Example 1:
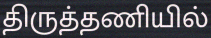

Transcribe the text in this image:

திருத்தணியில்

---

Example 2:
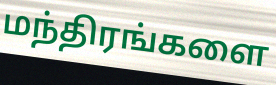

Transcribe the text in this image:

மந்திரங்களை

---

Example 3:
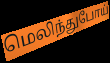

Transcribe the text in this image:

மெலிந்துபோய்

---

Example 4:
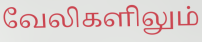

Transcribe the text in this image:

வேலிகளிலும்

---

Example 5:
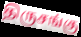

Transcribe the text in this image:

திருசங்கு